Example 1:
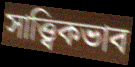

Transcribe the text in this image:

সাত্ত্বিকভাব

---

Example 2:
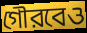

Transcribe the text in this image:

গৌরবেও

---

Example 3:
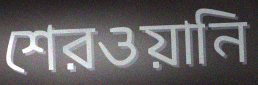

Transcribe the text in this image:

শেরওয়ানি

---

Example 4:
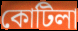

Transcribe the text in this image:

কোটিলা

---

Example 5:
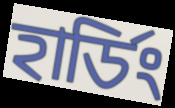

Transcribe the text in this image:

হার্ডিং